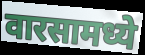
वारसामध्ये